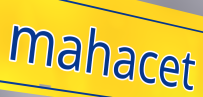
mahacet